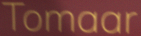
Tomaar